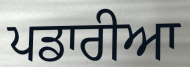
ਪਡਾਰੀਆ